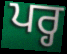
ਪਰ੍ਹ